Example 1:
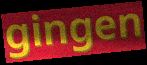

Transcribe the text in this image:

gingen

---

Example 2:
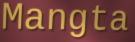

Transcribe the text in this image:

Mangta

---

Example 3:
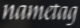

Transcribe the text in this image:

nametag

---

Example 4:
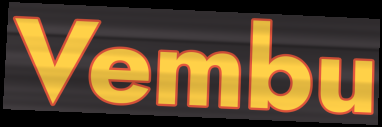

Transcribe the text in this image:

Vembu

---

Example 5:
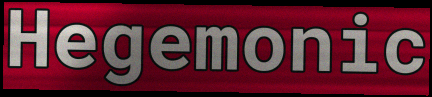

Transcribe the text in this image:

Hegemonic